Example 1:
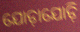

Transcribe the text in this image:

ଯୋଡ଼ାଯୋଡ଼ି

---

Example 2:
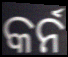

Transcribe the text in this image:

କର୍ନ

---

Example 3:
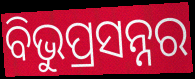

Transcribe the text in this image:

ବିଭୁପ୍ରସନ୍ନର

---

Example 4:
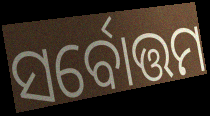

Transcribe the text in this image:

ସର୍ବୋତ୍ତମ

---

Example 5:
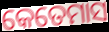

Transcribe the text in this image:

କେତେମାସ